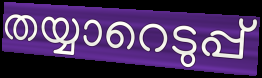
തയ്യാറെടുപ്പ്